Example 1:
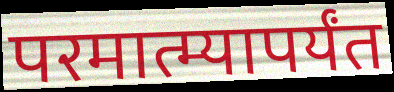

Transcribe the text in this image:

परमात्म्यापर्यंत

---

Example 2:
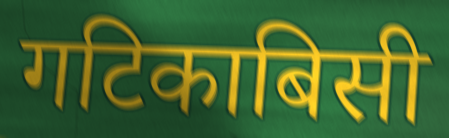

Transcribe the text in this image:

गटिकाबिसी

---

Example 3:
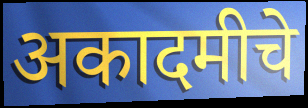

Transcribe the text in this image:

अकादमीचे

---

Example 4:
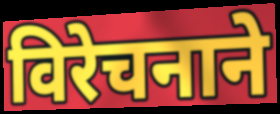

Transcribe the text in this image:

विरेचनाने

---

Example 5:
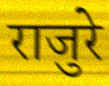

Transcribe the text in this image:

राजुरे